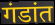
गंडांत